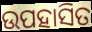
ଉପହାସିତ